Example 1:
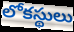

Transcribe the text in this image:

లోకస్థులు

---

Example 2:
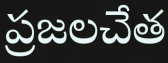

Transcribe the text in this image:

ప్రజలచేత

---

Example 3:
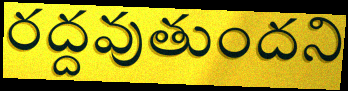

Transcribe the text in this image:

రద్దవుతుందని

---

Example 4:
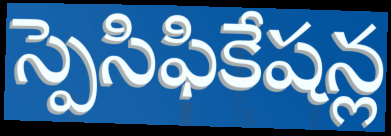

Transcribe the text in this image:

స్పెసిఫికేషన్ల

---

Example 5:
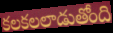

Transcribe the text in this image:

కలకలలాడుతోంది